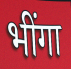
भींगा